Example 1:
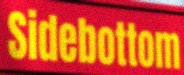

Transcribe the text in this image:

Sidebottom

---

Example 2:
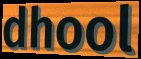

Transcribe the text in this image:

dhool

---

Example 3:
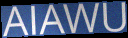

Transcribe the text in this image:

AIAWU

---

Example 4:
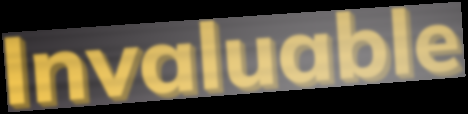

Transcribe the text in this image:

Invaluable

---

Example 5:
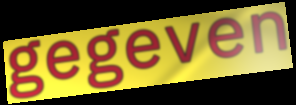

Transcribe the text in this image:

gegeven